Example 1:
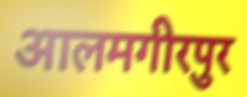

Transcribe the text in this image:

आलमगीरपुर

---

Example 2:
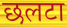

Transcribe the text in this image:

छलटा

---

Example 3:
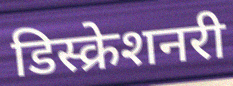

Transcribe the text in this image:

डिस्क्रेशनरी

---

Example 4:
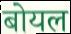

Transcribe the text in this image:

बोयल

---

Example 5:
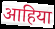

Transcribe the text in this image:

आहिया